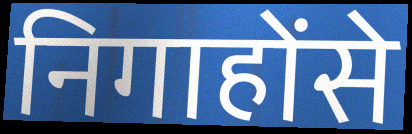
निगाहोंसे